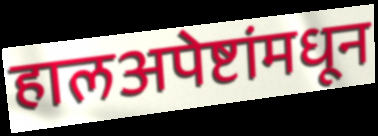
हालअपेष्टांमधून